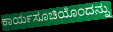
ಕಾರ್ಯಸೂಚಿಯೊಂದನ್ನು